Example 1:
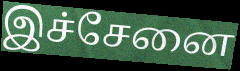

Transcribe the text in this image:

இச்சேனை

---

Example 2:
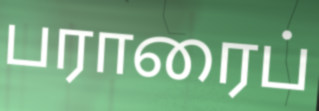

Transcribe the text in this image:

பராரைப்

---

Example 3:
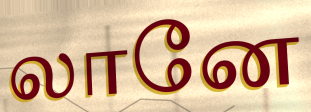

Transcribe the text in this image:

லானே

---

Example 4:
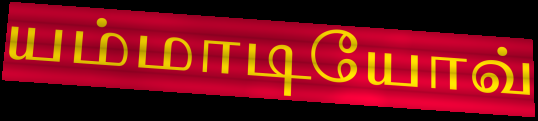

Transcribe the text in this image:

யம்மாடியோவ்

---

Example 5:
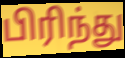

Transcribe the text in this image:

பிரிந்து